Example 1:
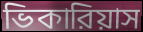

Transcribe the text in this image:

ভিকারিয়াস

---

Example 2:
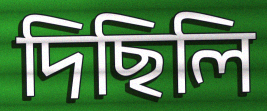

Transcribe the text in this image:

দিছিলি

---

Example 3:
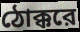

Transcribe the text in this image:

ঠোক্করে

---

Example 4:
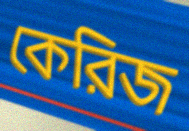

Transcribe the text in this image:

কেরিজ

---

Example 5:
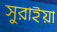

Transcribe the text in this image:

সুরাইয়া